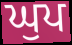
ਘੁਪ